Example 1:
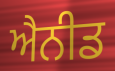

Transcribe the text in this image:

ਐਨੀਡ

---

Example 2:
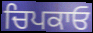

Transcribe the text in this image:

ਚਿਪਕਾਓ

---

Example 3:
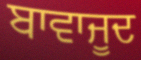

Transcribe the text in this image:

ਬਾਵਾਜੂਦ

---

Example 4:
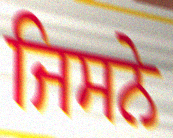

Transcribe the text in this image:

ਜਿਸਨੇ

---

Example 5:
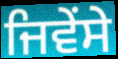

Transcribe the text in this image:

ਜਿਵੇਂਸੇ